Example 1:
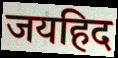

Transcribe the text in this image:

जयहिद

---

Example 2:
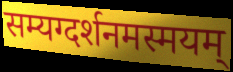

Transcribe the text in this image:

सम्यग्दर्शनमस्मयम्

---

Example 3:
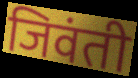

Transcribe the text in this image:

जिवंती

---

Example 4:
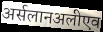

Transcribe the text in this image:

अर्सलानअलीएव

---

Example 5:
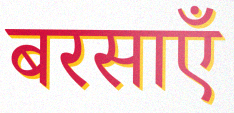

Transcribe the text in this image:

बरसाएँ